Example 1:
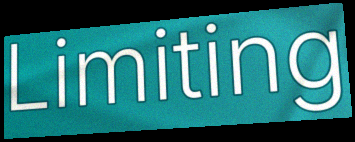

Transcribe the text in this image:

Limiting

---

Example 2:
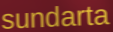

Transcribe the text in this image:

sundarta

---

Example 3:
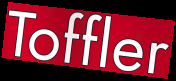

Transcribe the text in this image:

Toffler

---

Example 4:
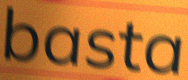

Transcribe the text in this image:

basta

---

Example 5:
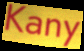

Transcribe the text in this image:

Kany